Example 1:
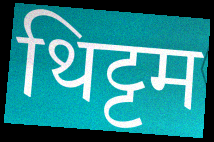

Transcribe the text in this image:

थिट्टम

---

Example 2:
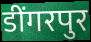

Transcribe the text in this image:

डींगरपुर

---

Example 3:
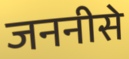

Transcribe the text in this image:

जननीसे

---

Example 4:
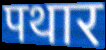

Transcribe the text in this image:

पथार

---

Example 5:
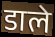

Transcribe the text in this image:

डाले